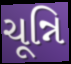
ચૂન્નિ